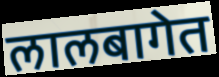
लालबागेत